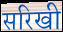
सरिखी